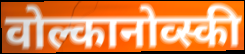
वोल्कानोव्स्की